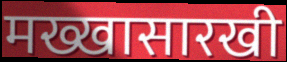
मख्खासारखी